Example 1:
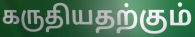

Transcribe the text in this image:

கருதியதற்கும்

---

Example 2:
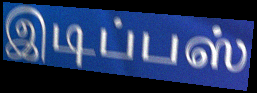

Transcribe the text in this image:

இடிப்பஸ்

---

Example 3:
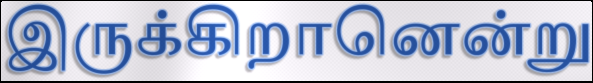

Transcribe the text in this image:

இருக்கிறானென்று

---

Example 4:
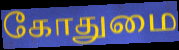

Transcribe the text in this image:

கோதுமை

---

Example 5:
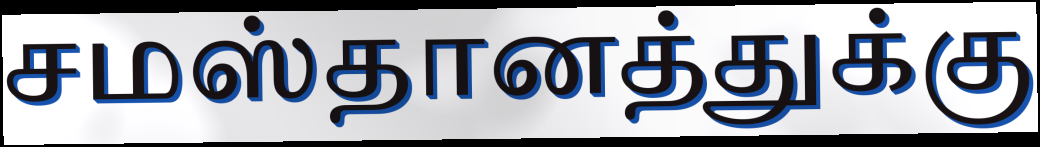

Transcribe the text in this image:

சமஸ்தானத்துக்கு